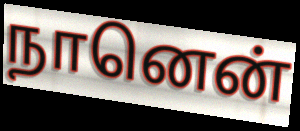
நானென்